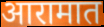
आरामात